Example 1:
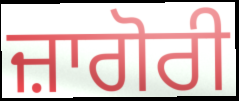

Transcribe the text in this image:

ਜ਼ਾਗੋਰੀ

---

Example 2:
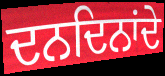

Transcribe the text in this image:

ਦਨਦਿਨਾਂਦੇ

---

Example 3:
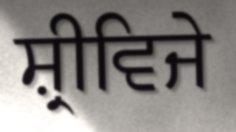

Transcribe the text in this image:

ਸ਼੍ਰੀਵਿਜੇ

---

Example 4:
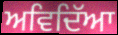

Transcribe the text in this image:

ਅਵਿਦਿੱਆ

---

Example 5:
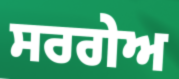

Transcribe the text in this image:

ਸਰਗੇਅ